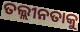
ତଲ୍ଲୀନତାକୁ